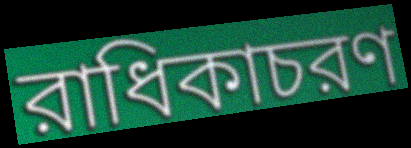
রাধিকাচরণ